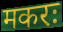
मकरः